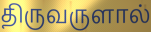
திருவருளால்